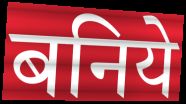
बनिये